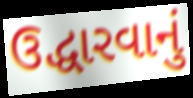
ઉદ્ધારવાનું